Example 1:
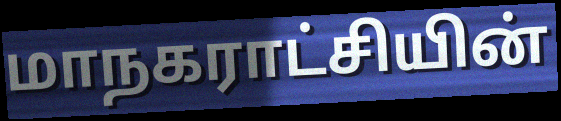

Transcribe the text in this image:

மாநகராட்சியின்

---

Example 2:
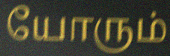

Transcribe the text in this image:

யோரும்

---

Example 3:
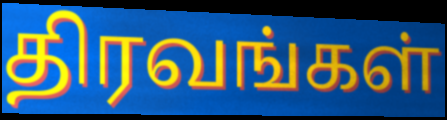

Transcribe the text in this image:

திரவங்கள்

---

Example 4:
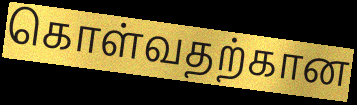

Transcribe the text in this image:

கொள்வதற்கான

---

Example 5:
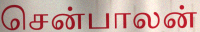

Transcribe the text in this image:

சென்பாலன்